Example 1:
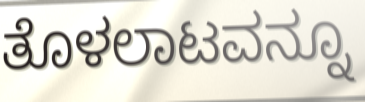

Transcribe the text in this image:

ತೊಳಲಾಟವನ್ನೂ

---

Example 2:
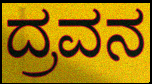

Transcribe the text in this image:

ದ್ರವನ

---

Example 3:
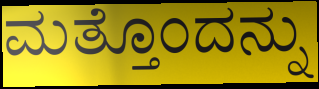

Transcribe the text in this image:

ಮತ್ತೊಂದನ್ನು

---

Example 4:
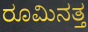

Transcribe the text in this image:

ರೂಮಿನತ್ತ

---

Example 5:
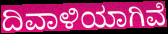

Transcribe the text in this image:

ದಿವಾಳಿಯಾಗಿವೆ